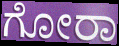
ಗೋರಾ